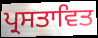
ਪ੍ਰਸਤਾਵਿਤ